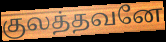
குலத்தவனே